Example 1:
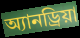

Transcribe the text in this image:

অ্যানড্রিয়া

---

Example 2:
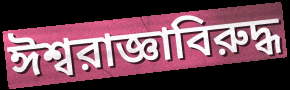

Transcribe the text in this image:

ঈশ্বরাজ্ঞাবিরুদ্ধ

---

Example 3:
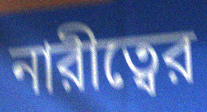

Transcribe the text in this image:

নারীত্বের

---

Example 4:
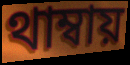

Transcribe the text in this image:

থাম্বায়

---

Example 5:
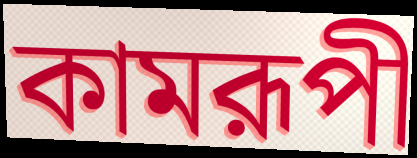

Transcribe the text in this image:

কামরূপী